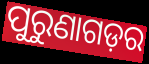
ପୁରୁଣାଗଡ଼ର